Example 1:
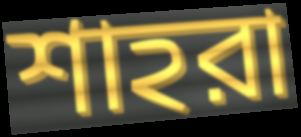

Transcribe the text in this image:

শাহরা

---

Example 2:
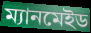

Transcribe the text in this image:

ম্যানমেইড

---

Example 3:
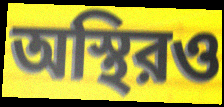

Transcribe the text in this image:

অস্থিরও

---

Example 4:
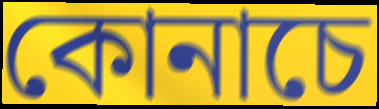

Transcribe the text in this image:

কোনাচে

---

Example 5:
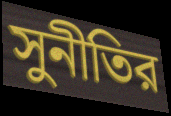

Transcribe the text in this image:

সুনীতির